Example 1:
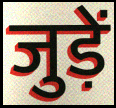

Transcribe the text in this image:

जुड़ें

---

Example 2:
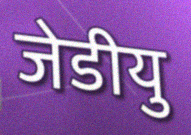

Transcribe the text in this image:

जेडीयु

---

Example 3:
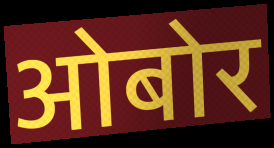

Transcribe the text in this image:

ओबोर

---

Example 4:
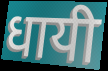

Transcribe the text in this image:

धायी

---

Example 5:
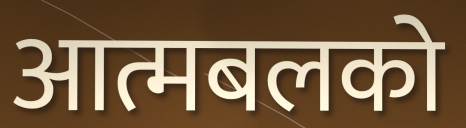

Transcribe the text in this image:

आत्मबलको